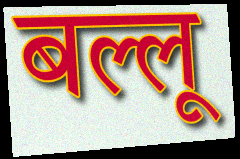
बल्लू